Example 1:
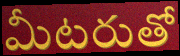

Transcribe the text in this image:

మీటరుతో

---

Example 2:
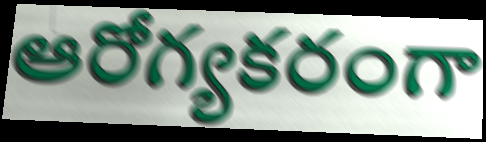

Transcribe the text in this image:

ఆరోగ్యకరంగా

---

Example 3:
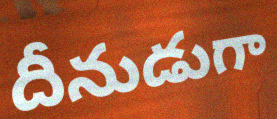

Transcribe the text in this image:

దీనుడుగా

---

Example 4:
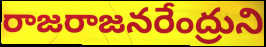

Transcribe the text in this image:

రాజరాజనరేంద్రుని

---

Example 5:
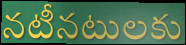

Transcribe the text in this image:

నటీనటులకు